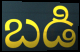
బడి